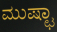
ಮುಷ್ಟಾ